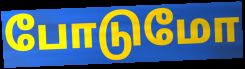
போடுமோ